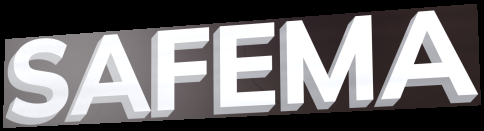
SAFEMA